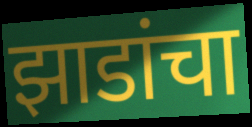
झाडांचा